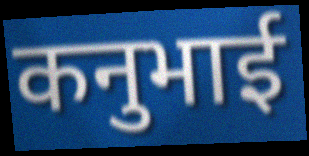
कनुभाई